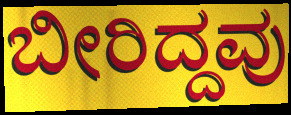
ಬೀರಿದ್ದವು